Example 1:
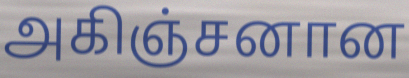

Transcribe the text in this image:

அகிஞ்சனான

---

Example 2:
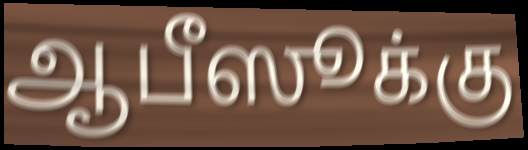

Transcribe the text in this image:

ஆபீஸூக்கு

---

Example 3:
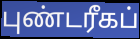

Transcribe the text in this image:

புண்டரீகப்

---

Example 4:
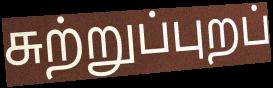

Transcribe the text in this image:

சுற்றுப்புறப்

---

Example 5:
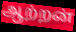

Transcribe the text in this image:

ஆற்றன்